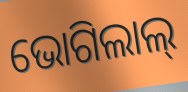
ଭୋଗିଲାଲ୍